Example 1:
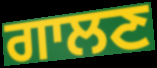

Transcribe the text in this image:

ਗਾਲਣ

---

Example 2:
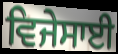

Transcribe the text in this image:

ਵਿਜੇਸਾਈ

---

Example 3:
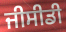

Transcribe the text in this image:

ਜੀਸੀਡੀ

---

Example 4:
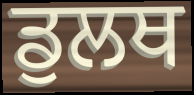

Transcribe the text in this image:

ਡੁਲਥ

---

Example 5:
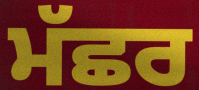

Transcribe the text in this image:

ਮੱਛਰ